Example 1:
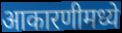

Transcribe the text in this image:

आकारणीमध्ये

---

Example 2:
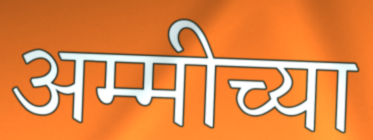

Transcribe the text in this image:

अम्मीच्या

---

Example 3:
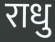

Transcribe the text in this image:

राधु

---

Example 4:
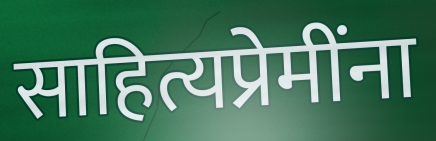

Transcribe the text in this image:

साहित्यप्रेमींना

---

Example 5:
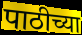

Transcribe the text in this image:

पाठीच्या